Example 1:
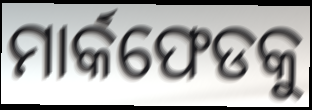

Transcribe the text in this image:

ମାର୍କଫେଡକୁ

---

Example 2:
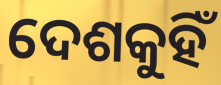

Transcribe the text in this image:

ଦେଶକୁହିଁ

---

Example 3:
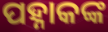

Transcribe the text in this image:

ପହ୍ନାକଙ୍କ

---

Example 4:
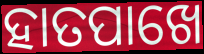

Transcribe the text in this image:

ହାତପାଖେ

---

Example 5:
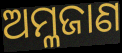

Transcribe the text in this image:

ଅମ୍ଳଜାଣ